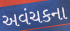
અવંચકના